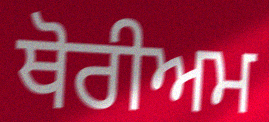
ਥੋਰੀਅਮ